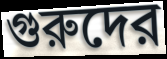
গুরুদের